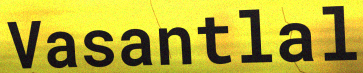
Vasantlal